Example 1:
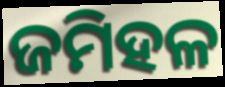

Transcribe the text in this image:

ଜମିହଳ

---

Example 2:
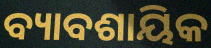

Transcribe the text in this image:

ବ୍ୟାବଶାୟିକ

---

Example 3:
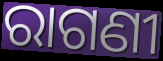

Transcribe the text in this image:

ରାଗଣୀ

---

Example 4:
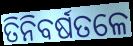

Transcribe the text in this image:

ତିନିବର୍ଷତଳେ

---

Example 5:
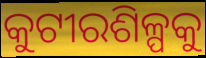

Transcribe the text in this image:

କୁଟୀରଶିଳ୍ପକୁ